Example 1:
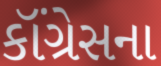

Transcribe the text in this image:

કૉંગ્રેસના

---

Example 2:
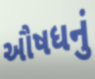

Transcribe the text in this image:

ઔષધનું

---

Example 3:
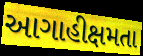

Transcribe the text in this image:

આગાહીક્ષમતા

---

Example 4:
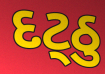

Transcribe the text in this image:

દટ્ઠુ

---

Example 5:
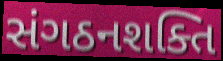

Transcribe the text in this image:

સંગઠનશક્તિ